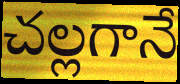
చల్లగానే